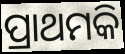
ପ୍ରାଥମକି